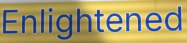
Enlightened